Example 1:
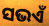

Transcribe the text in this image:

ସଭଏଁ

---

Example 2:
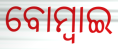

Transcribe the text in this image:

ବୋମ୍ୱାଇ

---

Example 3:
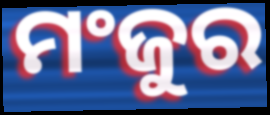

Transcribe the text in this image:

ମଂଜୁର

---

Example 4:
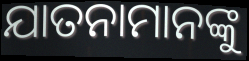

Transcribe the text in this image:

ଯାତନାମାନଙ୍କୁ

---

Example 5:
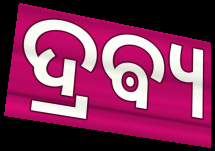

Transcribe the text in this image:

ଦ୍ରଵ୍ୟ